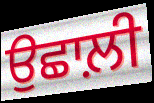
ਉਛਾਲ਼ੀ